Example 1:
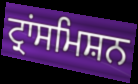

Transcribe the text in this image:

ਟ੍ਰਾਂਸਮਿਸ਼ਨ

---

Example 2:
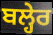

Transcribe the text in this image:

ਬਲ੍ਹੇਰ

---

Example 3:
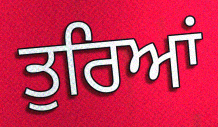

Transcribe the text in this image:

ਤੁਰਿਆਂ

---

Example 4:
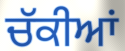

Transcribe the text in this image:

ਚੱਕੀਆਂ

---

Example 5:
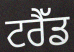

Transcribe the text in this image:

ਟਰੈੱਡ